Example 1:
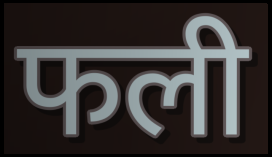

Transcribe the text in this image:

फली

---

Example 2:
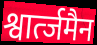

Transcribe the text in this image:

श्वार्त्जमैन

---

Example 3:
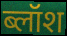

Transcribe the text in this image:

ब्लॉश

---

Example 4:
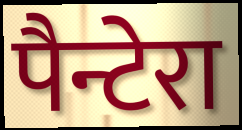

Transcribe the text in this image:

पैन्टेरा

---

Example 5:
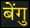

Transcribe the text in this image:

बेंगु